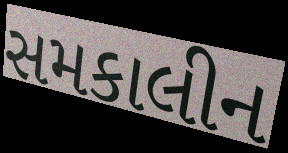
સમકાલીન